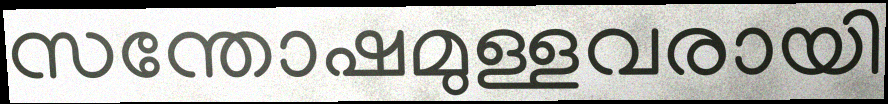
സന്തോഷമുള്ളവരായി